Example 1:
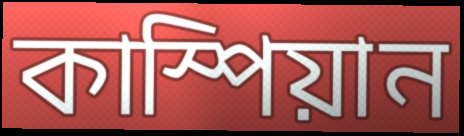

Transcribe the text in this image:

কাস্পিয়ান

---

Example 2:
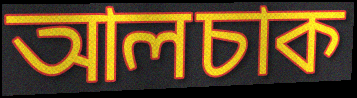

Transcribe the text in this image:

আলচাক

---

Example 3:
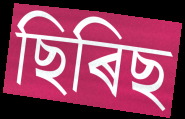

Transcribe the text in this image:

ছিৰিছ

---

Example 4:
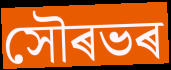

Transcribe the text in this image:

সৌৰভৰ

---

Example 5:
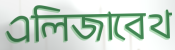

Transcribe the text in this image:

এলিজাবেথ